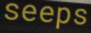
seeps